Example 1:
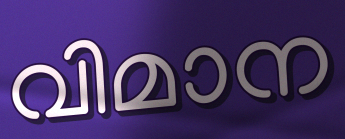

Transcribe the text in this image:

വിമാന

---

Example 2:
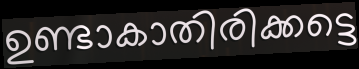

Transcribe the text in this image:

ഉണ്ടാകാതിരിക്കട്ടെ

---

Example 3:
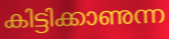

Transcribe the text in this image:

കിട്ടിക്കാണുന്ന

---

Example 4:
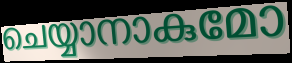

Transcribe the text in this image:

ചെയ്യാനാകുമോ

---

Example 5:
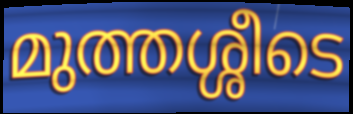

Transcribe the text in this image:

മുത്തശ്ശീടെ